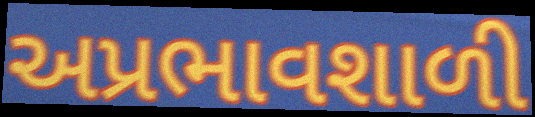
અપ્રભાવશાળી